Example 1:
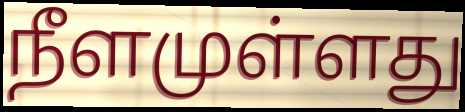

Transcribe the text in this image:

நீளமுள்ளது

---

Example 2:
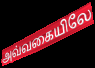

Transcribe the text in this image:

அவ்வகையிலே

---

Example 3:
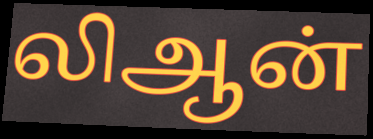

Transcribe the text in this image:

லிஆன்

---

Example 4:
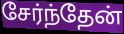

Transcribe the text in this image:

சேர்ந்தேன்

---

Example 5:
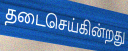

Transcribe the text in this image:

தடைசெய்கின்றது